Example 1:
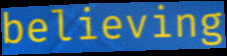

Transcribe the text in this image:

believing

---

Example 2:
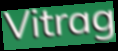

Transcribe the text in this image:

Vitrag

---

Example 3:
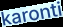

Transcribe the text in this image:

karonti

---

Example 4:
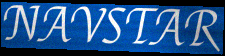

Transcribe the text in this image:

NAVSTAR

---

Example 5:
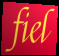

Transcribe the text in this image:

fiel